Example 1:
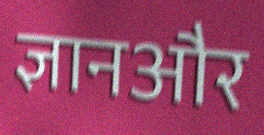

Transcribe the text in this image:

ज्ञानऔर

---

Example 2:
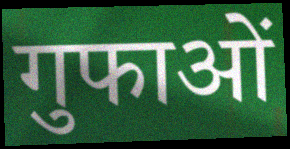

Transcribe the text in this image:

गुफाओं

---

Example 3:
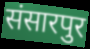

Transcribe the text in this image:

संसारपुर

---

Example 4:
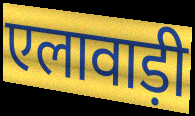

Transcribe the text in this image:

एलावाड़ी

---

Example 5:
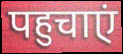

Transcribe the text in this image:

पहुचाएं